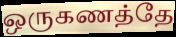
ஒருகணத்தே